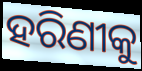
ହରିଣୀକୁ